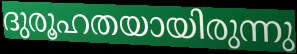
ദുരൂഹതയായിരുന്നു